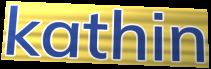
kathin